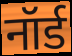
नॉर्ड